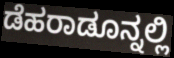
ಡೆಹರಾಡೂನ್ನಲ್ಲಿ